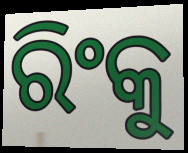
ରିଂକୁ